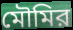
মৌমির